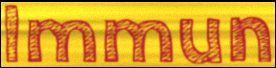
Immun